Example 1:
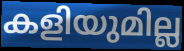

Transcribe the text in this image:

കളിയുമില്ല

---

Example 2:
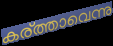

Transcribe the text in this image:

കര്ത്താവെന്നു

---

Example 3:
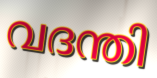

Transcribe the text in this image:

വദന്തി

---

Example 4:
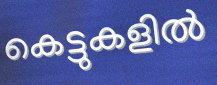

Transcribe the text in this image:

കെട്ടുകളിൽ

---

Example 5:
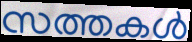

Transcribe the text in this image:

സത്തകൾ